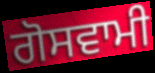
ਗੋਸਵਾਮੀ